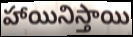
హాయినిస్తాయి